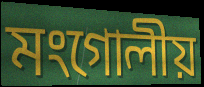
মংগোলীয়